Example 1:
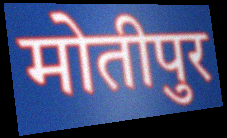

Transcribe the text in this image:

मोतीपुर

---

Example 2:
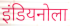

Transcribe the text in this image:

इंडियनोला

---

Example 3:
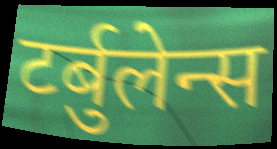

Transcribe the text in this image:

टर्बुलेन्स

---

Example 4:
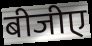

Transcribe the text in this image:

बीजीए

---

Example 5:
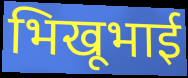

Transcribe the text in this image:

भिखूभाई